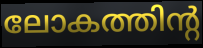
ലോകത്തിന്റ